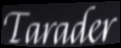
Tarader